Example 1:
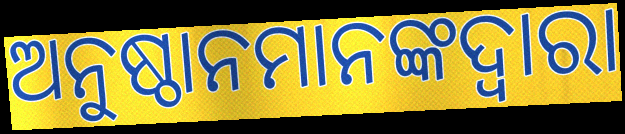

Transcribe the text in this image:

ଅନୁଷ୍ଠାନମାନଙ୍କଦ୍ଵାରା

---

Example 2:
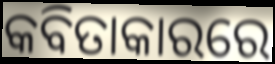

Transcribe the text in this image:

କବିତାକାରରେ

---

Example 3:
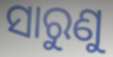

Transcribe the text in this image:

ସାରୁଣୁ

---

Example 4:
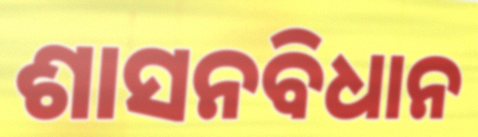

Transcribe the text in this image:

ଶାସନବିଧାନ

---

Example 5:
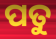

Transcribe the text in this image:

ପତୁ